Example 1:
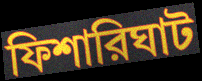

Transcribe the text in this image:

ফিশারিঘাট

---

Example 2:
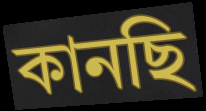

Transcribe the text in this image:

কানছি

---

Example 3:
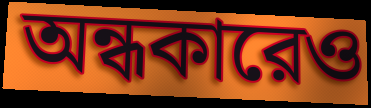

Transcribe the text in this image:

অন্ধকারেও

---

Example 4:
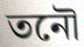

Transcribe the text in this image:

তনৌ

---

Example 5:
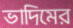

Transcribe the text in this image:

ভাদিমের